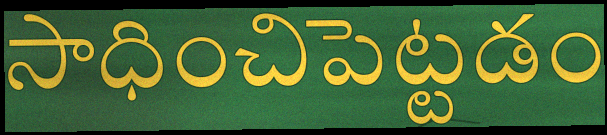
సాధించిపెట్టడం